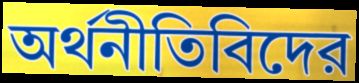
অর্থনীতিবিদের